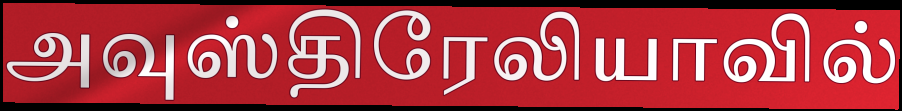
அவுஸ்திரேலியாவில்